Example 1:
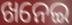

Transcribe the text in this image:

ଖନେଇ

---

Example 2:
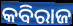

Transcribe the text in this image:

କବିରାଜ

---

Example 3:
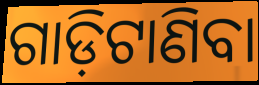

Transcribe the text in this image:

ଗାଡ଼ିଟାଣିବା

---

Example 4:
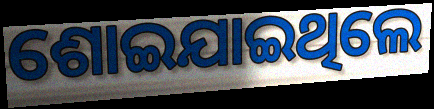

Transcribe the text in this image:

ଶୋଇଯାଇଥିଲେ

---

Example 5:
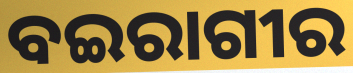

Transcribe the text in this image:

ବଇରାଗୀର